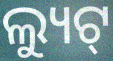
ଲ୍ୟୁଟ୍